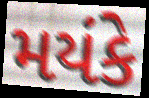
મયંકે